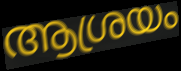
ആശ്രയം